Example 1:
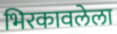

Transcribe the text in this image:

भिरकावलेला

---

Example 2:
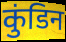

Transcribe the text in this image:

कुंडिन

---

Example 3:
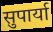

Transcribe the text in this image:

सुपार्या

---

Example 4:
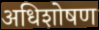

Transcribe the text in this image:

अधिशोषण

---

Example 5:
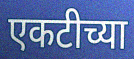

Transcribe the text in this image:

एकटीच्या